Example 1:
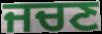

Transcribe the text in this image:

ਜਚਣ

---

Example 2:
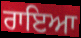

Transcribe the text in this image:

ਰਾਇਆ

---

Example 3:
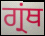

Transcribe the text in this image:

ਗ੍ਰਂਥ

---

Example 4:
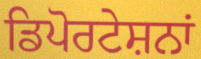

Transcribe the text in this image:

ਡਿਪੋਰਟੇਸ਼ਨਾਂ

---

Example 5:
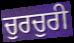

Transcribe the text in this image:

ਚੁਰਚੁਰੀ